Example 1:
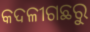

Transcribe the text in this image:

କଦଳୀଗଛରୁ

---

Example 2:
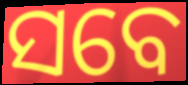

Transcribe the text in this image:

ସବେ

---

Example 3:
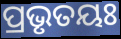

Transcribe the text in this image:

ପ୍ରଭୃତୟଃ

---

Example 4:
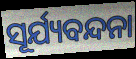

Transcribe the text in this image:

ସୂର୍ଯ୍ୟବନ୍ଦନା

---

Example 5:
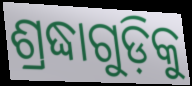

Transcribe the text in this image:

ଶ୍ରଦ୍ଧାଗୁଡ଼ିକୁ